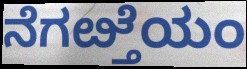
ನೆಗೞ್ತೆಯಂ